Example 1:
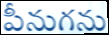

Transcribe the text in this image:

పీనుగను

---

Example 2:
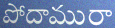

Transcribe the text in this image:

పోదామురా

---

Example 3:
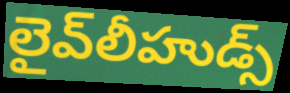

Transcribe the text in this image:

లైవ్‌లీహుడ్స్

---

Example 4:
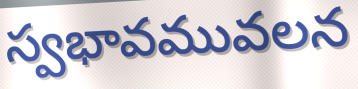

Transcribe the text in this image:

స్వభావమువలన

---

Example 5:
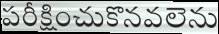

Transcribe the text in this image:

పరీక్షించుకొనవలెను